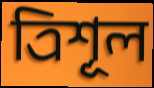
ত্রিশূল